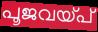
പൂജവയ്പ്